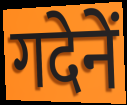
गदेनें